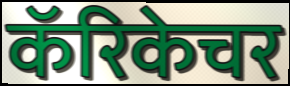
कॅरिकेचर